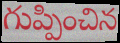
గుప్పించిన